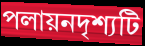
পলায়নদৃশ্যটি